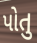
પોતુ